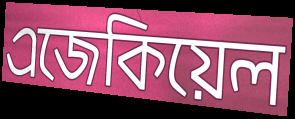
এজেকিয়েল